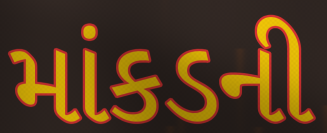
માંકડની